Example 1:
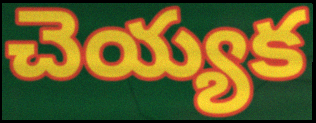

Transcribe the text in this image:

చెయ్యక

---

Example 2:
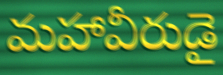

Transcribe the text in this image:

మహావీరుడై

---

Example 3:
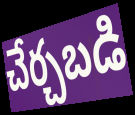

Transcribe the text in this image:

చేర్చబడి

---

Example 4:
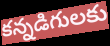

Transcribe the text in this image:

కన్నడిగులకు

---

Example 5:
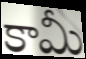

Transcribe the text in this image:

కామీ